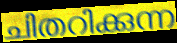
ചിതറിക്കുന്ന